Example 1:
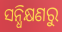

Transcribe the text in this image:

ସନ୍ଧିକ୍ଷଣରୁ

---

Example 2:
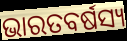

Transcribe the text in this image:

ଭାରତବର୍ଷସ୍ୟ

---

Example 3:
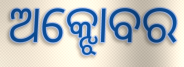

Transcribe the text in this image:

ଅକ୍ଝୋବର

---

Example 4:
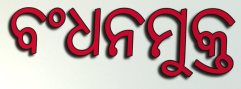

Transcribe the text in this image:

ବଂଧନମୁକ୍ତ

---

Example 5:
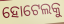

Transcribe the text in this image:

ହୋଟେଲକୁ